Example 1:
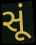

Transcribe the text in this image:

સૂં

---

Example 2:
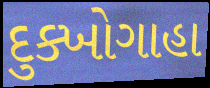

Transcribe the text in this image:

દુક્ખોગાહા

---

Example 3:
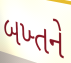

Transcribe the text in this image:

બખ્તને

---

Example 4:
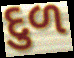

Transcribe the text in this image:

દુળ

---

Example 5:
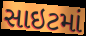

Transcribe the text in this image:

સાઇટમાં